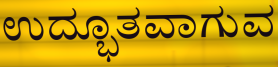
ಉದ್ಭೂತವಾಗುವ